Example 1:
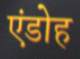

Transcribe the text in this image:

एंडोह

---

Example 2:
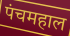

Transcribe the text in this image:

पंचमहाल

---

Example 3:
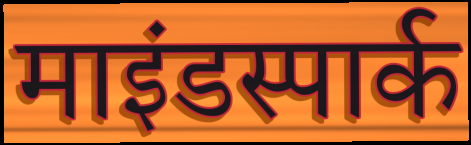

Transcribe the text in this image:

माइंडस्पार्क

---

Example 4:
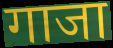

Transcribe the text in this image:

गाजा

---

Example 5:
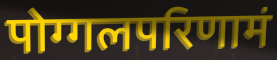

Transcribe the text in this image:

पोग्गलपरिणामं